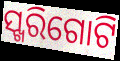
ସ୍ଖରିଗୋଟି